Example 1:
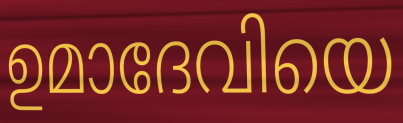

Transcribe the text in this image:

ഉമാദേവിയെ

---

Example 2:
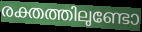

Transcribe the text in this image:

രക്തത്തിലുണ്ടോ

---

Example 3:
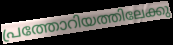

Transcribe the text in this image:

പ്രത്തോറിയത്തിലേക്കു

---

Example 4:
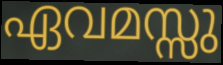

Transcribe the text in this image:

ഏവമസ്സു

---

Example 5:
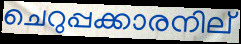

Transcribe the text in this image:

ചെറുപ്പക്കാരനില്